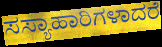
ಸಸ್ಯಾಹಾರಿಗಳಾದರೆ